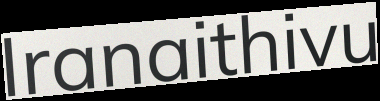
Iranaithivu